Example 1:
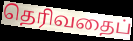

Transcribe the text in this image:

தெரிவதைப்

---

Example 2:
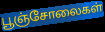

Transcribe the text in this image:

பூஞ்சோலைகள்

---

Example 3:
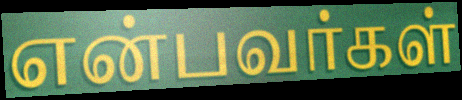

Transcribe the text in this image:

என்பவர்கள்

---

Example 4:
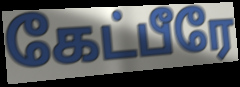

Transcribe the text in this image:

கேட்பீரே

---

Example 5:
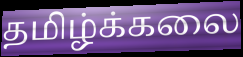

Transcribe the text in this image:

தமிழ்க்கலை